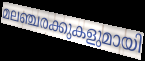
മലഞ്ചരക്കുകളുമായി